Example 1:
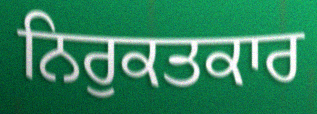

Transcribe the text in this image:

ਨਿਰੁਕਤਕਾਰ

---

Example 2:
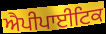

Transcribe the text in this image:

ਐਪੀਪਾਈਟਿਕ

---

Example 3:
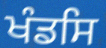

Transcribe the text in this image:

ਖੰਡਸਿ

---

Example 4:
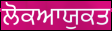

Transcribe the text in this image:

ਲੋਕਆਯੁਕਤ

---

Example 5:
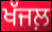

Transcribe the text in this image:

ਖੱਜਲ਼